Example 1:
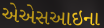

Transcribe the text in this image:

એએસઆઇના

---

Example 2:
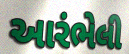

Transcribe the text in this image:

આરંભેલી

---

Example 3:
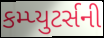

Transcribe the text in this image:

કમ્પ્યુટર્સની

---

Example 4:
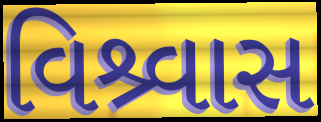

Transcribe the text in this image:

વિશ્ર્વાસ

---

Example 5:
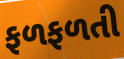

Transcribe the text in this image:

ફળફળતી